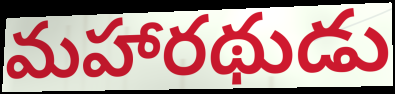
మహారథుడు